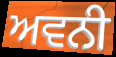
ਅਵਨੀ